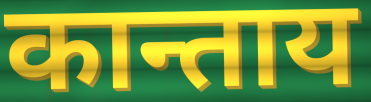
कान्ताय